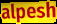
alpesh